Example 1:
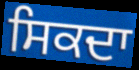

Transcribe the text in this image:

ਸਿਕਦਾ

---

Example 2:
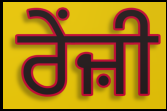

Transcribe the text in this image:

ਰੇਂਜ਼ੀ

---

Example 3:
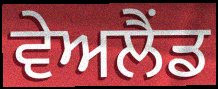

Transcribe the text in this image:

ਵੇਅਲੈਂਡ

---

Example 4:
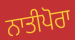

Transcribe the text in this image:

ਨਾਤੀਪੋਰਾ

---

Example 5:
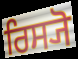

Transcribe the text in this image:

ਰਿਸ੍ਯੋ